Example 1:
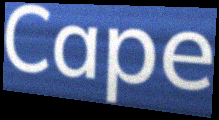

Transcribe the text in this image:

Cape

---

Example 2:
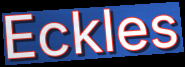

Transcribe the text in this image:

Eckles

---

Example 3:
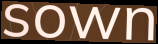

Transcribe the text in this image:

sown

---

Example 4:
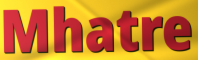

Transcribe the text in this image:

Mhatre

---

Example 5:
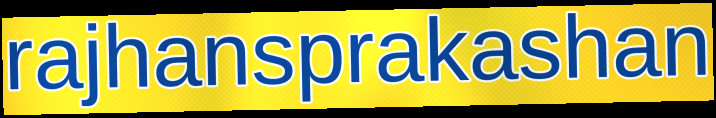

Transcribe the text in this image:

rajhansprakashan